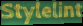
Stylelint